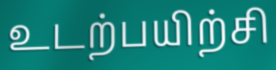
உடற்பயிற்சி